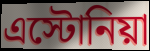
এস্টোনিয়া